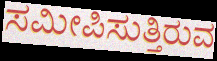
ಸಮೀಪಿಸುತ್ತಿರುವ